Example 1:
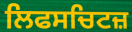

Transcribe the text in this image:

ਲਿਫਸਚਿਟਜ਼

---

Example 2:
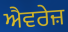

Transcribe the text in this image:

ਐਵਰੇਜ਼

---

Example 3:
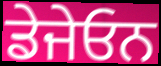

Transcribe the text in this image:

ਡੇਜੇਓਨ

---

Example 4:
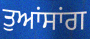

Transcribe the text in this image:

ਤੁਆਂਸਾਂਗ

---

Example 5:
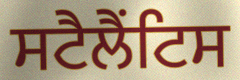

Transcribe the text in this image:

ਸਟੈਲੈਂਟਿਸ